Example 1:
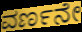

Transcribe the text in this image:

ವರ್ಣನೇ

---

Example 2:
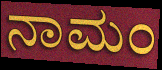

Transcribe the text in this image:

ನಾಮಂ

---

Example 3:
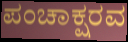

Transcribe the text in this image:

ಪಂಚಾಕ್ಷರವ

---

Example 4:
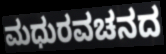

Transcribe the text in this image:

ಮಧುರವಚನದ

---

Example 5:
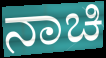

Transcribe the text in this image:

ನಾಚಿ